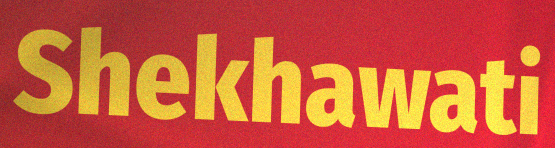
Shekhawati